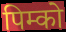
पिम्को